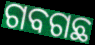
ଗବଗଛ